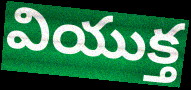
వియుక్త